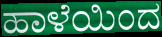
ಹಾಳೆಯಿಂದ